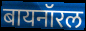
बायनॉरल